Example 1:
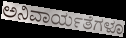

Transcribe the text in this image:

ಅನಿವಾರ್ಯತೆಗಳೂ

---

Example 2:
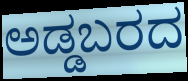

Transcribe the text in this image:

ಅಡ್ಡಬರದ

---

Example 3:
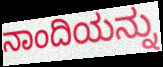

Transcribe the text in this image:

ನಾಂದಿಯನ್ನು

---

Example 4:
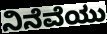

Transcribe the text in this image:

ನಿನೆವೆಯು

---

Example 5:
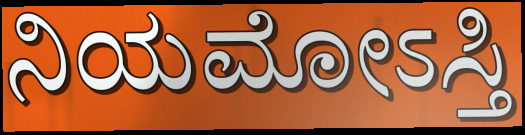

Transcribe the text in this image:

ನಿಯಮೋಽಸ್ತಿ